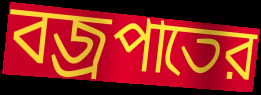
বজ্রপাতের